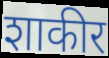
शाकीर